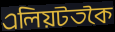
এলিয়টতকৈ